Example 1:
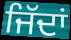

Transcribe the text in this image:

ਜਿੱਦਾਂ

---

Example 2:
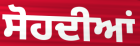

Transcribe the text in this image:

ਸੋਹਦੀਆਂ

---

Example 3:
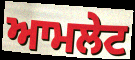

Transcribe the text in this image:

ਆਮਲੇਟ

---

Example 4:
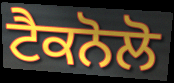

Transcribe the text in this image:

ਟੈਕਨੋਲੋ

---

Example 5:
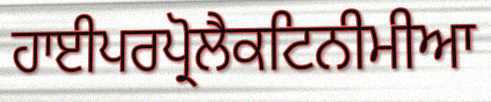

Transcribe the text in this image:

ਹਾਈਪਰਪ੍ਰੋਲੈਕਟਿਨੀਮੀਆ